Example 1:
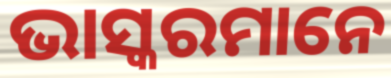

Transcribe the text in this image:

ଭାସ୍କରମାନେ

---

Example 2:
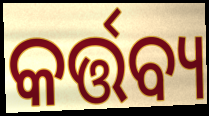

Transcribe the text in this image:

କର୍ତ୍ତବ୍ୟ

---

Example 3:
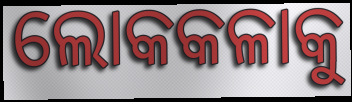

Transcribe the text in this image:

ଲୋକକଳାକୁ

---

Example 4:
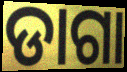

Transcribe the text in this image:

ଡାଗା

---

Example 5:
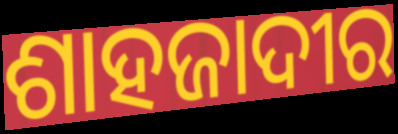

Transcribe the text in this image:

ଶାହଜାଦୀର